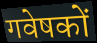
गवेषकों